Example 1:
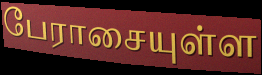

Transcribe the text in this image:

பேராசையுள்ள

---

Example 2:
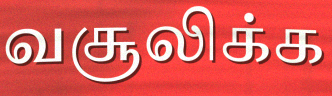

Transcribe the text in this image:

வசூலிக்க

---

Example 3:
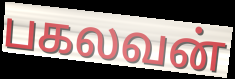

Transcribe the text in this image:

பகலவன்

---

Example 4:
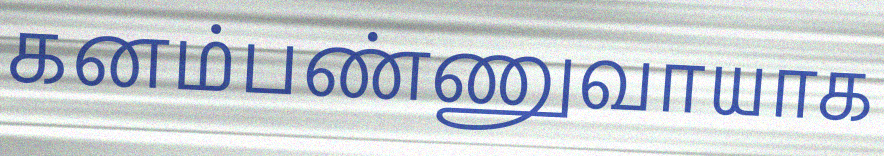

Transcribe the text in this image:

கனம்பண்ணுவாயாக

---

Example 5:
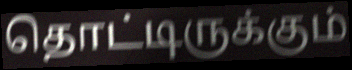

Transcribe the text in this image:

தொட்டிருக்கும்